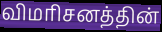
விமரிசனத்தின்